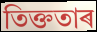
তিক্ততাৰ